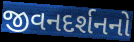
જીવનદર્શનનો